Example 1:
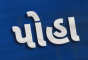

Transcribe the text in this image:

પોહા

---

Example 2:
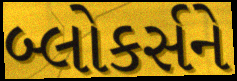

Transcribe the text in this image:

બ્લોકર્સને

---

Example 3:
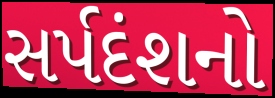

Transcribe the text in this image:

સર્પદંશનો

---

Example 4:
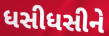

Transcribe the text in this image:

ધસીધસીને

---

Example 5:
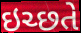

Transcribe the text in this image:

ઇચ્છતે